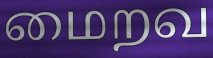
மைறவ